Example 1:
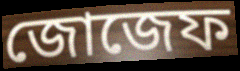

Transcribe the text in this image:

জোজেফ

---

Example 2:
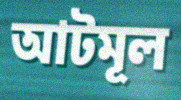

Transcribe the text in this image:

আটমূল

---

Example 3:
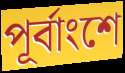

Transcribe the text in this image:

পূর্বাংশে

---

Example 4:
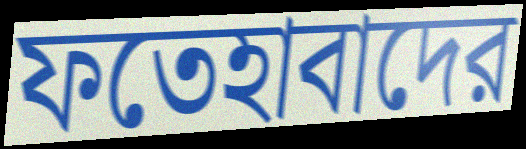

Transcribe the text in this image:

ফতেহাবাদের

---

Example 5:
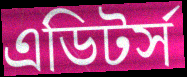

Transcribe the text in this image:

এডিটর্স